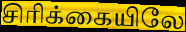
சிரிக்கையிலே